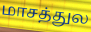
மாசத்துல